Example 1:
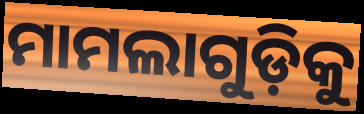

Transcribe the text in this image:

ମାମଲାଗୁଡ଼ିକୁ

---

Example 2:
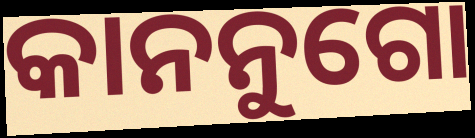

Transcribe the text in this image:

କାନନୁଗୋ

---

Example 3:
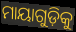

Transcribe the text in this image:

ମାୟାଗୁଡ଼ିକୁ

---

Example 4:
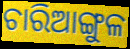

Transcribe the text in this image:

ଚାରିଆଙ୍ଗୁଳ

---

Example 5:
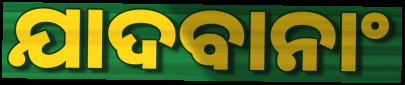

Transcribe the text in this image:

ଯାଦବାନାଂ